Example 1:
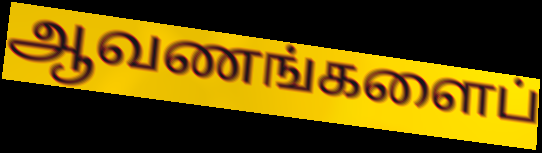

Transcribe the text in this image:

ஆவணங்களைப்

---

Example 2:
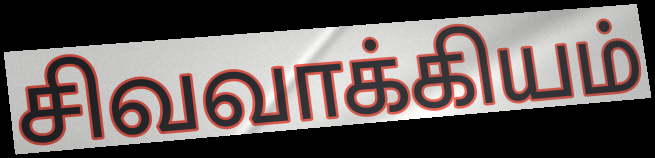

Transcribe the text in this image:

சிவவாக்கியம்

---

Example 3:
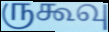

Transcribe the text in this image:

ருகூவு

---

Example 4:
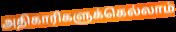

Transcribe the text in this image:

அதிகாரிகளுக்கெல்லாம்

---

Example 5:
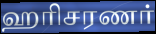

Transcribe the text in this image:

ஹரிசரணர்